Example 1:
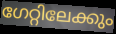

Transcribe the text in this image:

ഗേറ്റിലേക്കും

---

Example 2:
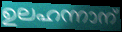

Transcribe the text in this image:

ഉലഹന്നാന്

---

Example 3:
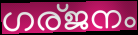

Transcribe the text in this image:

ഗര്ജനം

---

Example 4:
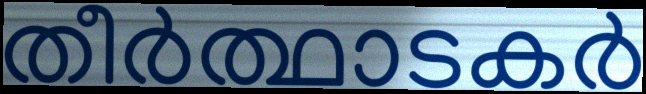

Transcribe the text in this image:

തീർത്ഥാടകർ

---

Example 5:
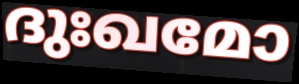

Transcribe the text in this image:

ദുഃഖമോ